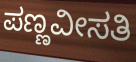
ಪಣ್ಣವೀಸತಿ